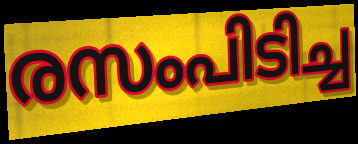
രസംപിടിച്ച